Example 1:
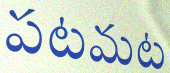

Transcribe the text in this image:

పటమట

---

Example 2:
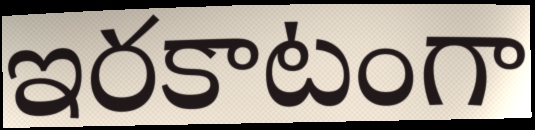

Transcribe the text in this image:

ఇరకాటంగా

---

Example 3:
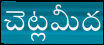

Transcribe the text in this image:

చెట్లమీద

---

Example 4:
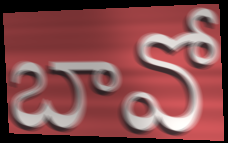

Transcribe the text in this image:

బావో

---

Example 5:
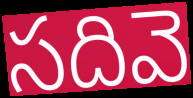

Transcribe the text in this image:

సదివె